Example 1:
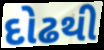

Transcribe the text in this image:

દોઢથી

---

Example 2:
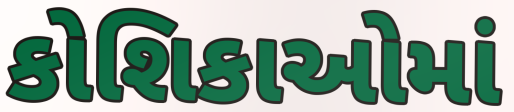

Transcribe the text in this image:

કોશિકાઓમાં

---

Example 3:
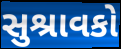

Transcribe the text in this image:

સુશ્રાવકો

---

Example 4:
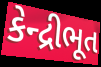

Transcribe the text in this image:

કેન્દ્રીભૂત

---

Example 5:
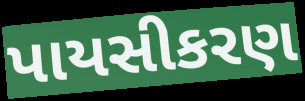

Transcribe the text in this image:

પાયસીકરણ